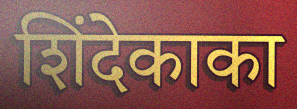
शिंदेकाका